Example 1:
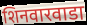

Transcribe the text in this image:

शिनवारवाडा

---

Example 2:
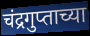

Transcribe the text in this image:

चंद्रगुप्ताच्या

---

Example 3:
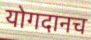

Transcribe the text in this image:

योगदानच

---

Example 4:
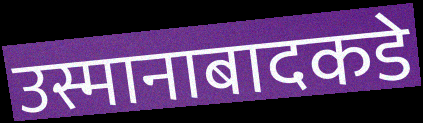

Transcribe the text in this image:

उस्मानाबादकडे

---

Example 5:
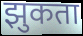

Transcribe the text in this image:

झुकता